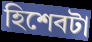
হিশেবটা